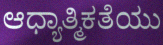
ಆಧ್ಯಾತ್ಮಿಕತೆಯು